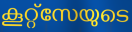
കൂറ്റ്സേയുടെ